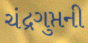
ચંદ્રગુપ્તની